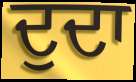
ਦੁਦਾ